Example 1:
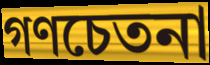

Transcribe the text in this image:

গণচেতনা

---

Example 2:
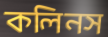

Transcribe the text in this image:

কলিনস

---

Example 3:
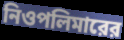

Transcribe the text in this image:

নিওপলিমারের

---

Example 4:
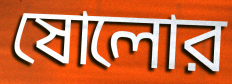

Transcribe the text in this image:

ষোলোর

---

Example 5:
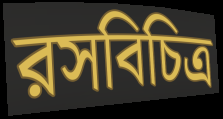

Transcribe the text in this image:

রসবিচিত্র